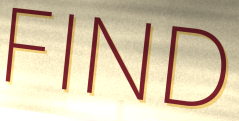
FIND